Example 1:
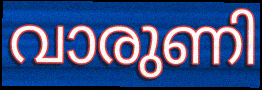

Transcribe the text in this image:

വാരുണി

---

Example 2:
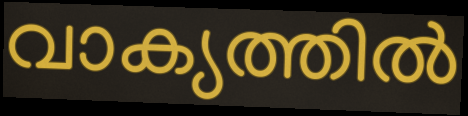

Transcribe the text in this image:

വാക്യത്തിൽ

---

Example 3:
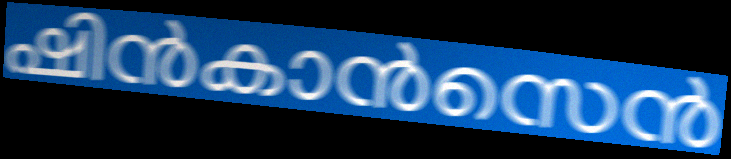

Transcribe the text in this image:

ഷിൻകാൻസെൻ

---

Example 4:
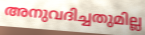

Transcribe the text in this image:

അനുവദിച്ചതുമില്ല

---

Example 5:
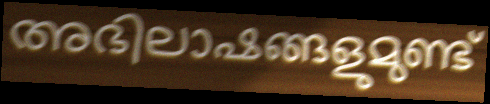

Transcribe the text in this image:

അഭിലാഷങ്ങളുമുണ്ട്